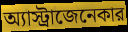
অ্যাস্ট্রাজেনেকার